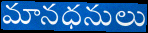
మానధనులు